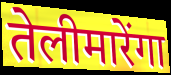
तेलीमारेंगा